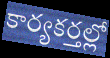
కార్యకర్తల్లో